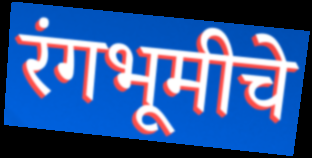
रंगभूमीचे